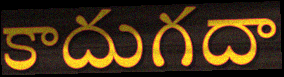
కాదుగదా